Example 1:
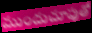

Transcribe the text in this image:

ముందుచూపుతో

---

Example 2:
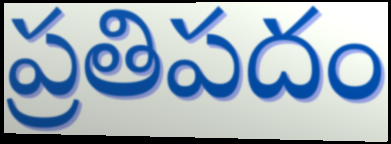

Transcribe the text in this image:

ప్రతిపదం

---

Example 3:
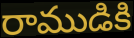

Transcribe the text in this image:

రాముడికి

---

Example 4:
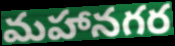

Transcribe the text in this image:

మహానగర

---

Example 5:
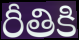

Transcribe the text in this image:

రీతికి